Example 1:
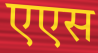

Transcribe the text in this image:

एएस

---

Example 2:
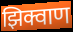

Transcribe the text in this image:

झिक्वाण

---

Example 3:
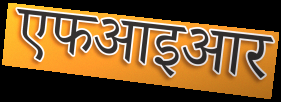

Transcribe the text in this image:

एफआइआर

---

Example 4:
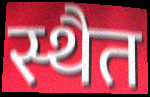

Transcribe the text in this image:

स्थैत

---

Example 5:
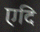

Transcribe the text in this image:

एदि